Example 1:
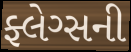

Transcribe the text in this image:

ફ્લેગ્સની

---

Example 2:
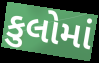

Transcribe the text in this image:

કુલોમાં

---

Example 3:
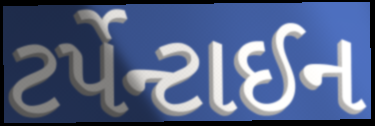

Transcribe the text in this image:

ટર્પેન્ટાઈન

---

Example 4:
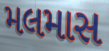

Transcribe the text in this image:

મલમાસ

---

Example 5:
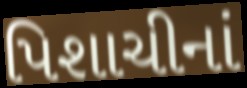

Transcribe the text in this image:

પિશાચીનાં